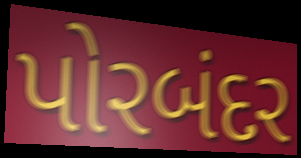
પોરબંદર